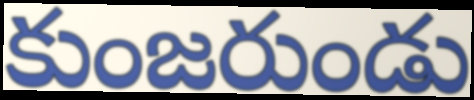
కుంజరుండు